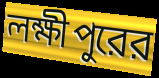
লক্ষীপুরের